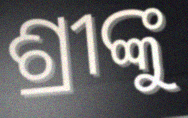
ଶ୍ରୀଙ୍କୁ